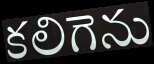
కలిగెను